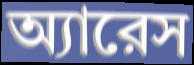
অ্যারেস